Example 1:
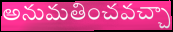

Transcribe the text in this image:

అనుమతించవచ్చా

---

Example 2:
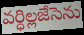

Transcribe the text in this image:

వర్ధిల్లజేసెను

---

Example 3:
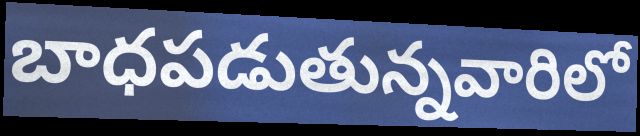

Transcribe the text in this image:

బాధపడుతున్నవారిలో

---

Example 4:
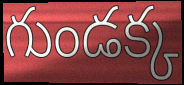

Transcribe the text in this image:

గుండక్క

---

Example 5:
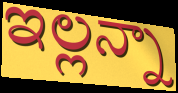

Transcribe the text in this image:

ఇల్లన్నా